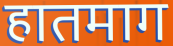
हातमाग